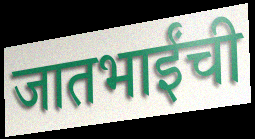
जातभाईंची